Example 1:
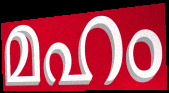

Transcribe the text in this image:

മഹം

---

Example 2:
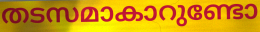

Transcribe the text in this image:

തടസമാകാറുണ്ടോ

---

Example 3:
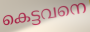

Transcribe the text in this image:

കെട്ടവനെ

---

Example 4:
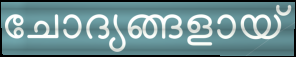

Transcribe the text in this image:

ചോദ്യങ്ങളായ്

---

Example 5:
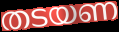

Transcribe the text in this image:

തടയണ